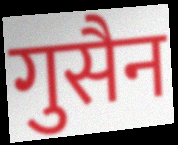
गुसैन